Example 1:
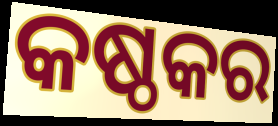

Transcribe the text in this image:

କଷ୍ଠକର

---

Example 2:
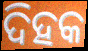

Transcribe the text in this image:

ଦିହକ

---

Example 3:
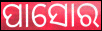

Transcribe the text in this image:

ପାସୋର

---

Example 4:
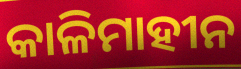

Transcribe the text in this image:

କାଳିମାହୀନ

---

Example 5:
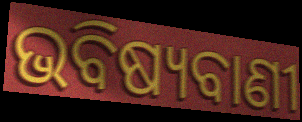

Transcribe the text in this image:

ଭବିଷ୍ଯବାଣୀ